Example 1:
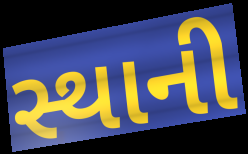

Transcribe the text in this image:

સ્થાની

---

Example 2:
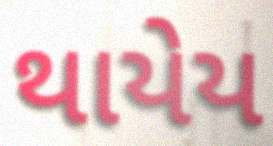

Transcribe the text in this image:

થાયેય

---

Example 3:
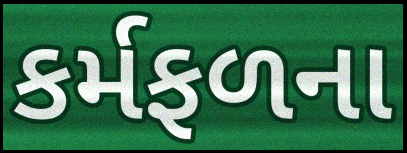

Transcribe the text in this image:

કર્મફળના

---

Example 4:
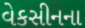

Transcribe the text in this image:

વેકસીનના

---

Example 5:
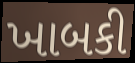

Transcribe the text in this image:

ખાબકી